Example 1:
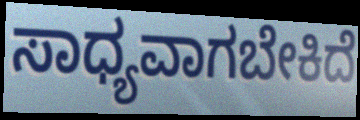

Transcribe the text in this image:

ಸಾಧ್ಯವಾಗಬೇಕಿದೆ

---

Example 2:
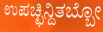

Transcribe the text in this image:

ಉಪಚ್ಛಿನ್ದಿತಬ್ಬೋ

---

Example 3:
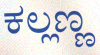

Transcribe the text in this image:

ಕಲ್ಲಣ್ಣ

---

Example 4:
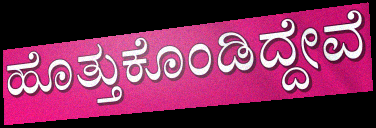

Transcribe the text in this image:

ಹೊತ್ತುಕೊಂಡಿದ್ದೇವೆ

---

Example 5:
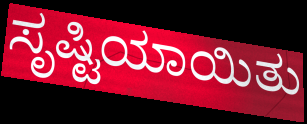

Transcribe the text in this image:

ಸೃಷ್ಟಿಯಾಯಿತು